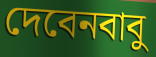
দেবেনবাবু